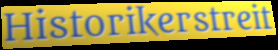
Historikerstreit